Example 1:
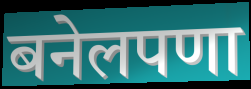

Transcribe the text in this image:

बनेलपणा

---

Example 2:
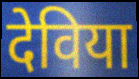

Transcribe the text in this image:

देविया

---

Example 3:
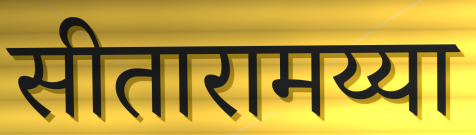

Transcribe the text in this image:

सीतारामय्या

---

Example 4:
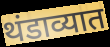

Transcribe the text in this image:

थंडाव्यात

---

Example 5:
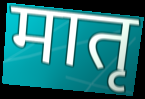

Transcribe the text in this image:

मातृ